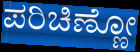
ಪರಿಚಿಣ್ಣೋ